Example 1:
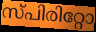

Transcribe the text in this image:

സ്പിരിറ്റോ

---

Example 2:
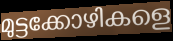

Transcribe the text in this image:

മുട്ടക്കോഴികളെ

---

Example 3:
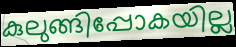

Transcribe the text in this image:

കുലുങ്ങിപ്പോകയില്ല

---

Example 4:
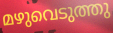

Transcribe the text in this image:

മഴുവെടുത്തു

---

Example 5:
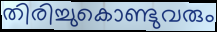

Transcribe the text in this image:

തിരിച്ചുകൊണ്ടുവരും